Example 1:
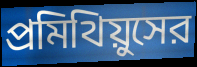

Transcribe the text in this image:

প্রমিথিয়ুসের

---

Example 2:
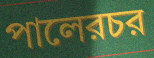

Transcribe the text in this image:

পালেরচর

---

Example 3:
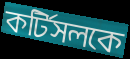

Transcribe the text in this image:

কর্টিসলকে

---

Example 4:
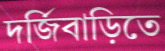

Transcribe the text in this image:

দর্জিবাড়িতে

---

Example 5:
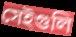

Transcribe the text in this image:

সেইগুলি